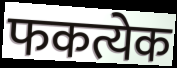
फकत्येक